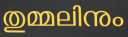
തുമ്മലിനും